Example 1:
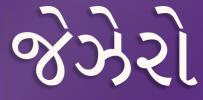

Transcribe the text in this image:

જેઝેરો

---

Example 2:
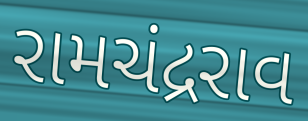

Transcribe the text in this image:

રામચંદ્રરાવ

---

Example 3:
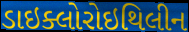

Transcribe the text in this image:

ડાઇક્લોરોઇથિલીન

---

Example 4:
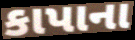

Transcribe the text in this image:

કાપાના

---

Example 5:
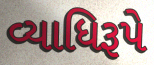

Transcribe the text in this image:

વ્યાધિરૂપે